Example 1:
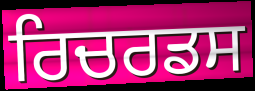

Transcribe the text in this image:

ਰਿਚਰਡਸ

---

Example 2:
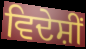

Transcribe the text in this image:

ਵਿਦੇਸ਼ੀਂ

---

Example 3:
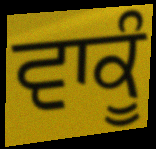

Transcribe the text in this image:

ਵਾਕੂੰ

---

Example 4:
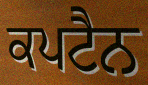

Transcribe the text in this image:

ਕਪਟੈਨ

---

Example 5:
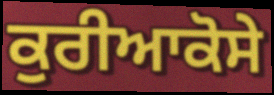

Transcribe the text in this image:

ਕੁਰੀਆਕੋਸੇ